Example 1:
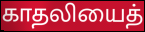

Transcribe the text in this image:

காதலியைத்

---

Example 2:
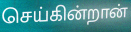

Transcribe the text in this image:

செய்கின்றான்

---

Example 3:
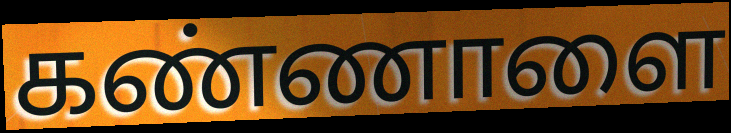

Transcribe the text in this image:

கண்ணாளை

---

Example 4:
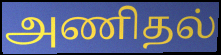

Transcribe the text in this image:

அணிதல்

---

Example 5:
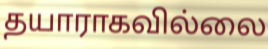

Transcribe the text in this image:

தயாராகவில்லை